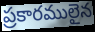
ప్రకారములైన